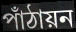
পাঁঠায়ন